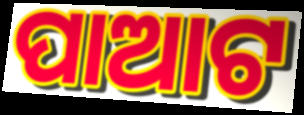
ପାଆଟ